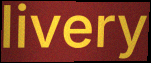
livery